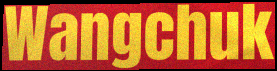
Wangchuk